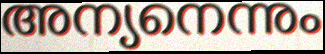
അന്യനെന്നും